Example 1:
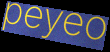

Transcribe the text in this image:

peyeo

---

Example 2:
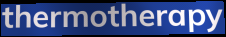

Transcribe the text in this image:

thermotherapy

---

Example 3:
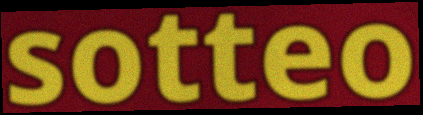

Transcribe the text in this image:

sotteo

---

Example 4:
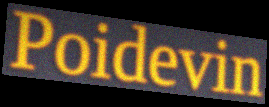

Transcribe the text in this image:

Poidevin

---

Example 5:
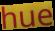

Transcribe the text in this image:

hue